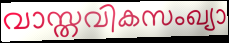
വാസ്തവികസംഖ്യാ